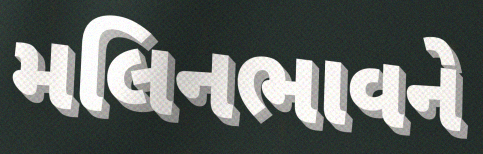
મલિનભાવને